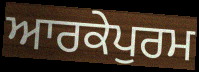
ਆਰਕੇਪੁਰਮ